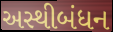
અસ્થીબંધન